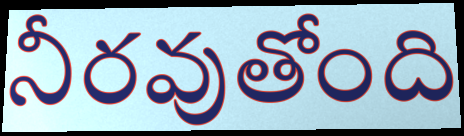
నీరవుతోంది